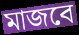
মাজবে